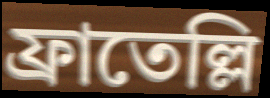
ফ্রাতেল্লি